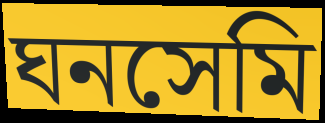
ঘনসেমি